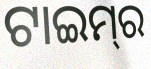
ଟାଇମ୍‌ର